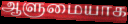
ஆளுமையாக